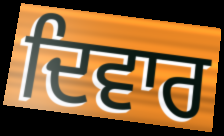
ਦਿਵਾਰ